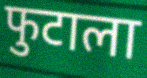
फुटाला